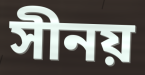
সীনয়